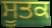
ਸੂਤਕ